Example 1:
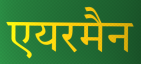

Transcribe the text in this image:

एयरमैन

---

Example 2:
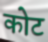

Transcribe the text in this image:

कोट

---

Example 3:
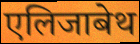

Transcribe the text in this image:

एलिजाबेथ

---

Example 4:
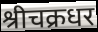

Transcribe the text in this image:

श्रीचक्रधर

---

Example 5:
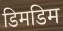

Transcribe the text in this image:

डिमडिम